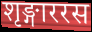
शृङ्गाररस